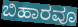
ಬಿಹಾರವೂ